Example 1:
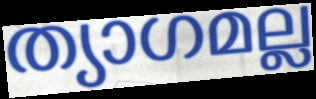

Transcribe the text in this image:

ത്യാഗമല്ല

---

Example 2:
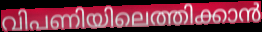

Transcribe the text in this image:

വിപണിയിലെത്തിക്കാൻ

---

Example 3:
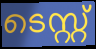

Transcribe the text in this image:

ടെസ്റ്റ്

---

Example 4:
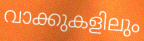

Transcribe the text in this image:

വാക്കുകളിലും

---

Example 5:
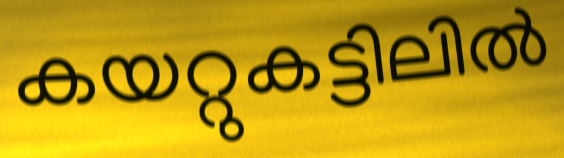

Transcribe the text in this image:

കയറ്റുകട്ടിലിൽ